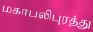
மகாபலிபுரத்து